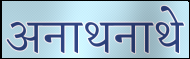
अनाथनाथे